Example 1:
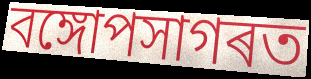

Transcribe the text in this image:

বঙ্গোপসাগৰত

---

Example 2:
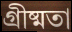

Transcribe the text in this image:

গ্ৰীষ্মতা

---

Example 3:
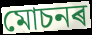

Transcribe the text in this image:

মোচনৰ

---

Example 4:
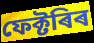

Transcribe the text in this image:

ফেক্টৰিৰ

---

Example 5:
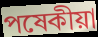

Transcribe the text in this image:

পষেকীয়া